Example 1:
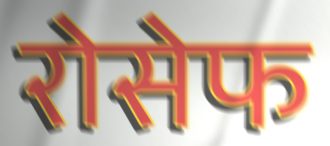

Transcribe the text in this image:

रोसेफ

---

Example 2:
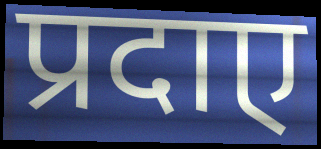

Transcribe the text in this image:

प्रदाए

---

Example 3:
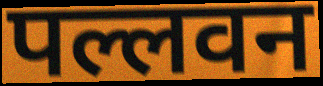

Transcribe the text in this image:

पल्लवन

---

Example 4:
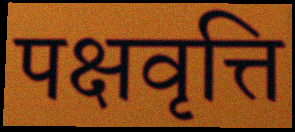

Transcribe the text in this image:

पक्षवृत्ति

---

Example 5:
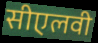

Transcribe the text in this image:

सीएलवी